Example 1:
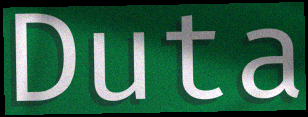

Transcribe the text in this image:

Duta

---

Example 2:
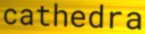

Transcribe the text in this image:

cathedra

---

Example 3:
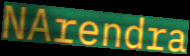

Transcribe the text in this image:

NArendra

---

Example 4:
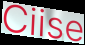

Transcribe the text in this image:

Ciise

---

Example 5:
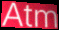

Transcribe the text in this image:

Atm